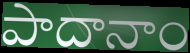
పాదానాం